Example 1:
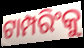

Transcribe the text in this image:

ଟାମ୍ପରିଂକୁ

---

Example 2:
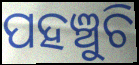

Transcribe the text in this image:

ପହଞ୍ଚୁଚି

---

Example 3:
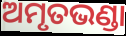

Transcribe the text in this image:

ଅମୃତଭଣ୍ଡା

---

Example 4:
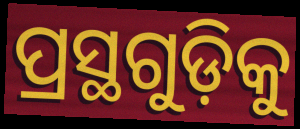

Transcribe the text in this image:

ପ୍ରସ୍ଥଗୁଡ଼ିକୁ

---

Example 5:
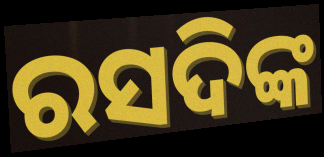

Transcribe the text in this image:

ରସଦିଙ୍କ